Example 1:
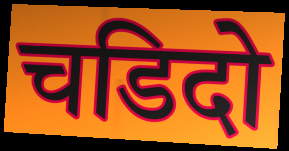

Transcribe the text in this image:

चडिदो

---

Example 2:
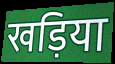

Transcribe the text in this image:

खड़िया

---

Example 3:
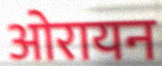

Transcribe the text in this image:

ओरायन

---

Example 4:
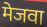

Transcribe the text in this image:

मेजवा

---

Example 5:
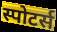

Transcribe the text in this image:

स्पोटर्स